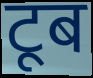
टूब